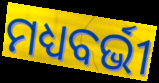
ମଧ୍ଯବର୍ଭୀ